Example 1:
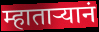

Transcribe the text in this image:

म्हाताऱ्यानं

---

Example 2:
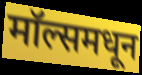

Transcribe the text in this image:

मॉल्समधून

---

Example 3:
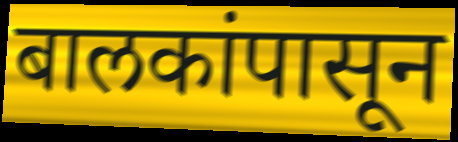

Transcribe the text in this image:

बालकांपासून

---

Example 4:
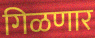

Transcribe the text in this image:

गिळणार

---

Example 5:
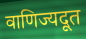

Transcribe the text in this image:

वाणिज्यदूत